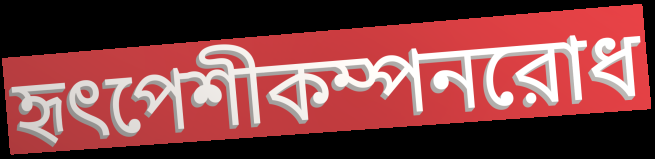
হৃৎপেশীকম্পনরোধ